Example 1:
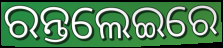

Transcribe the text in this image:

ରନ୍ତଲେଇରେ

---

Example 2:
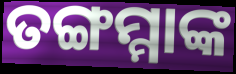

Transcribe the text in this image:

ତଙ୍ଗମ୍ମାଙ୍କ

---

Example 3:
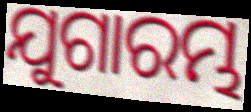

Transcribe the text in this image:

ଯୁଗାରମ୍ଭ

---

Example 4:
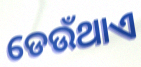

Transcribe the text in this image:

ଡେଉଁଥାଏ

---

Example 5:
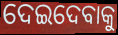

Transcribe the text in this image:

ଦେଇଦେବାକୁ